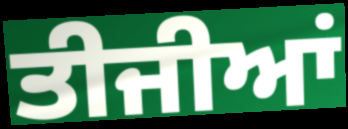
ਤੀਜੀਆਂ